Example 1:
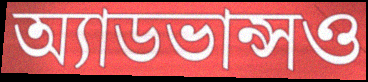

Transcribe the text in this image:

অ্যাডভান্সও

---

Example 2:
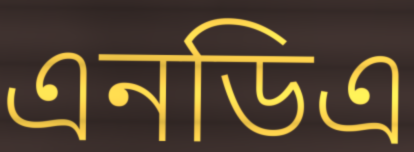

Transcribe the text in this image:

এনডিএ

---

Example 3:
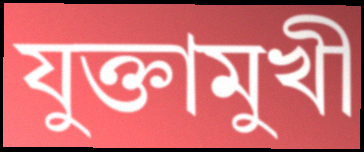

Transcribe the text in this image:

যুক্তামুখী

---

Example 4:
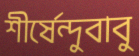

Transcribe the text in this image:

শীর্ষেন্দুবাবু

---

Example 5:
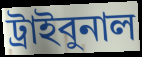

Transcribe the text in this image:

ট্রাইবুনাল